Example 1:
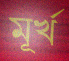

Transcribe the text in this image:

মূর্খ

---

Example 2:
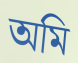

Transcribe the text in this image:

অমি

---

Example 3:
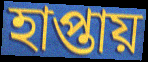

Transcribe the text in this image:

হাপ্তায়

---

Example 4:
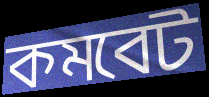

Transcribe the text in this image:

কমবেট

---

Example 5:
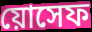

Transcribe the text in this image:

য়োসেফ